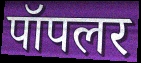
पॉपलर